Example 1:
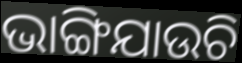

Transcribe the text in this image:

ଭାଙ୍ଗିଯାଉଚି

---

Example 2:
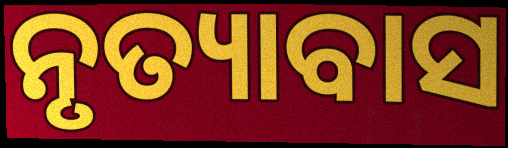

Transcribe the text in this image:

ନୃତ୍ୟାବାସ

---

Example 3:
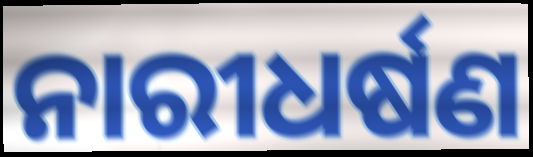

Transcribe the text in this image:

ନାରୀଧର୍ଷଣ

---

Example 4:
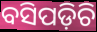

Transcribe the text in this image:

ବସିପଡ଼ିଚି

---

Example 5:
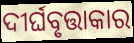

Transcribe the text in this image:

ଦୀର୍ଘବୃତ୍ତାକାର